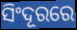
ସିଂଦୂରରେ